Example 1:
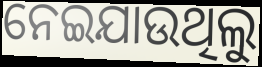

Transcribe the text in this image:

ନେଇଯାଉଥିଲୁ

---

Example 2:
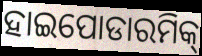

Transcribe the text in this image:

ହାଇପୋଡାରମିକ୍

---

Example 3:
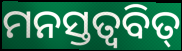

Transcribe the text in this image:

ମନସ୍ତତ୍ୱବିତ୍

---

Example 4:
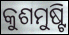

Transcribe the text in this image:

କୁଶମୁଷ୍ଟି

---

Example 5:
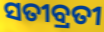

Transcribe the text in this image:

ସତୀବ୍ରତୀ